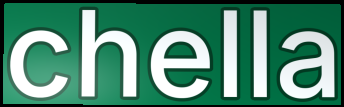
chella